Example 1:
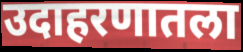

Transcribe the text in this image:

उदाहरणातला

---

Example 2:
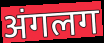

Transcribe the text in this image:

अंगलग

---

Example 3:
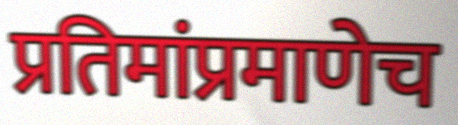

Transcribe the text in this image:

प्रतिमांप्रमाणेच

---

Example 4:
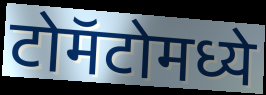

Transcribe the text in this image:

टोमॅटोमध्ये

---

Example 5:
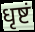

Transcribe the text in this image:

धृष्टं